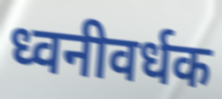
ध्वनीवर्धक